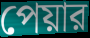
পেয়ার